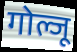
गोल्जू